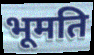
भूमति